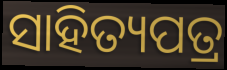
ସାହିତ୍ୟପତ୍ର